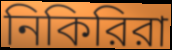
নিকিরিরা